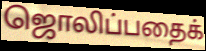
ஜொலிப்பதைக்